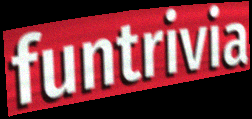
funtrivia